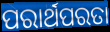
ପରାର୍ଥପରତା